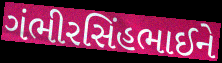
ગંભીરસિંહભાઈને